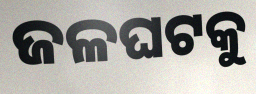
ଜଳଘଟକୁ